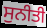
ਸੁਨੀਤੀ